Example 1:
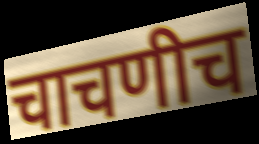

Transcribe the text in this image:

चाचणीच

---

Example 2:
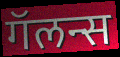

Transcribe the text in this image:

गॅलन्स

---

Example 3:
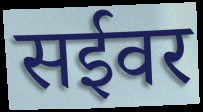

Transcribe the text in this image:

सईवर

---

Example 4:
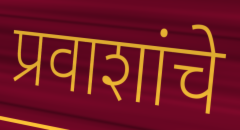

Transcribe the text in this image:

प्रवाशांचे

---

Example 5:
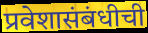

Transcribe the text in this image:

प्रवेशासंबंधीची